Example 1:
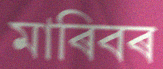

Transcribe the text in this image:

মাৰিবৰ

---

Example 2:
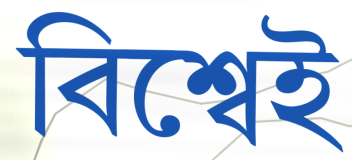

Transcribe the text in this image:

বিশ্বেই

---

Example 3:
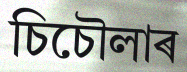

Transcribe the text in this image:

চিচৌলাৰ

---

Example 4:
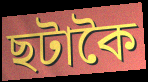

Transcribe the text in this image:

ছটাকৈ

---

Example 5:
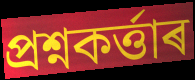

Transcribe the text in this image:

প্ৰশ্নকৰ্ত্তাৰ